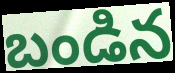
బండిన